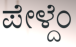
ಪೇಳ್ದೆಂ